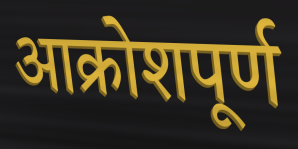
आक्रोशपूर्ण